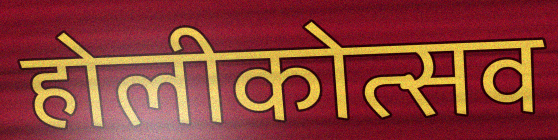
होलीकोत्सव